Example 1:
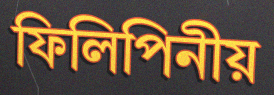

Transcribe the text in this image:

ফিলিপিনীয়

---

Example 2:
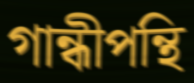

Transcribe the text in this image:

গান্ধীপন্থি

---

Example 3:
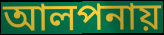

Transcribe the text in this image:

আলপনায়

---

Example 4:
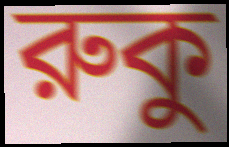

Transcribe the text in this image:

রুকু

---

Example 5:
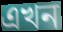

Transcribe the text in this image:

এখন